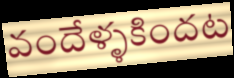
వందేళ్ళకిందట